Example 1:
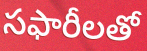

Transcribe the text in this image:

సఫారీలతో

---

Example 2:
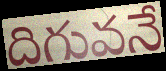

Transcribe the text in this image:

దిగువనే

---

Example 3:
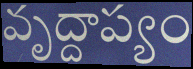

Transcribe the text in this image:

వృద్దాప్యం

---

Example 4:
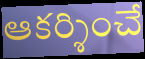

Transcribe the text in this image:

ఆకర్శించే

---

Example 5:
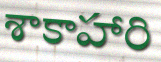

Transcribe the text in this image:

శాకాహారి